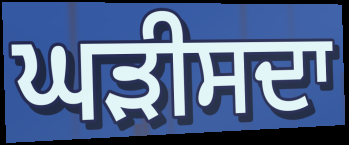
ਘੜੀਸਦਾ